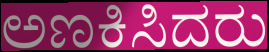
ಅಣಕಿಸಿದರು